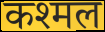
कश्मल